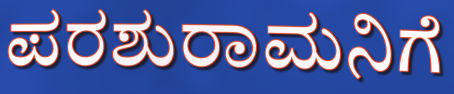
ಪರಶುರಾಮನಿಗೆ